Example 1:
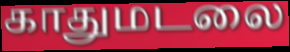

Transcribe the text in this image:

காதுமடலை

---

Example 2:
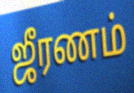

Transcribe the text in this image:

ஜீரணம்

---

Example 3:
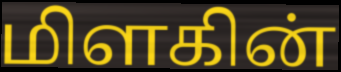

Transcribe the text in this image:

மிளகின்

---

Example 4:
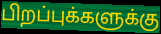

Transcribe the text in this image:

பிறப்புக்களுக்கு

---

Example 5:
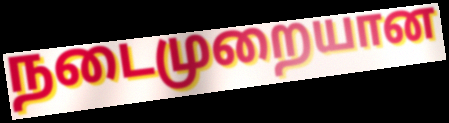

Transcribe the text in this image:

நடைமுறையான